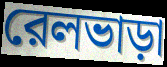
রেলভাড়া